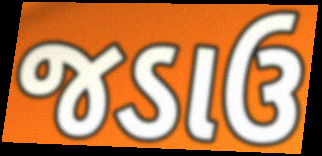
જડાઉ